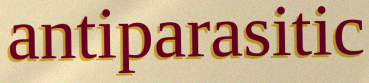
antiparasitic